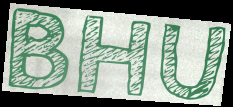
BHU